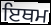
ਇਥਮ